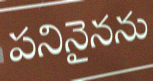
పనినైనను